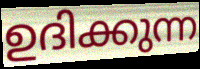
ഉദിക്കുന്ന